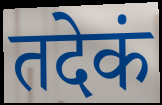
तदेकं